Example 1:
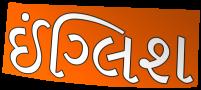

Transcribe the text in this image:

ઈંગ્લિશ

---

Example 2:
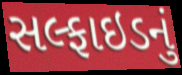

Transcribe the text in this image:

સલ્ફાઇડનું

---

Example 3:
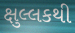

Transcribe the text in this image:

ક્ષુલ્લકથી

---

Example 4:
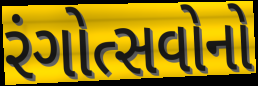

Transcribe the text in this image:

રંગોત્સવોનો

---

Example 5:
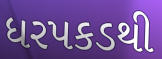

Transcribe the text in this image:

ધરપકડથી